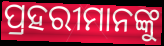
ପ୍ରହରୀମାନଙ୍କୁ